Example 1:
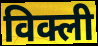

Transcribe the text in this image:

विक्ली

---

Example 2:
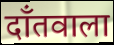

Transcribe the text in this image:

दाँतवाला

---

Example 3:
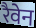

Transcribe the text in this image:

रैवेन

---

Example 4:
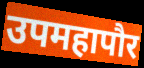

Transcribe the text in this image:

उपमहापौर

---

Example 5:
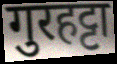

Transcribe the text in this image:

गुरहट्टा